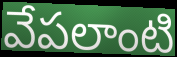
వేపలాంటి